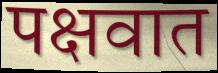
पक्षवात